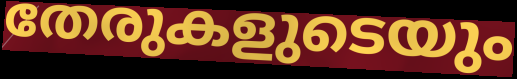
തേരുകളുടെയും